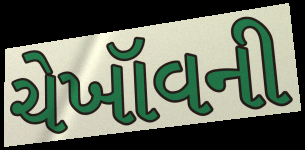
ચેખૉવની